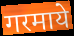
गरमाये